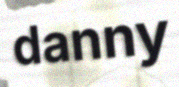
danny